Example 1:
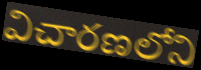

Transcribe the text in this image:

విచారణలోని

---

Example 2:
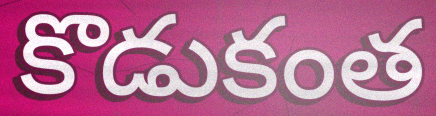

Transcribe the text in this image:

కొడుకంత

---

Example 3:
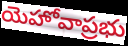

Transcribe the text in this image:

యెహోవాప్రభు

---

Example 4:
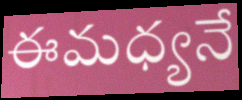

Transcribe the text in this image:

ఈమధ్యనే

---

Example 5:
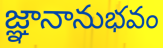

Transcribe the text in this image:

జ్ఞానానుభవం